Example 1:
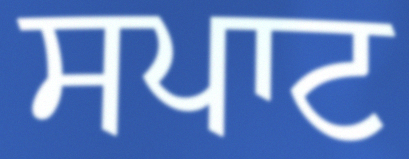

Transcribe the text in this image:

ਸਪਾਟ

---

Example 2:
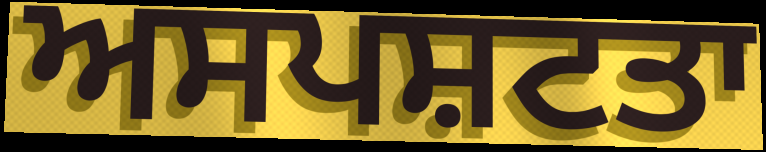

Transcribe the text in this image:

ਅਸਪਸ਼ਟਤਾ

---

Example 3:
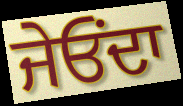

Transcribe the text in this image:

ਜੇਓੰਦਾ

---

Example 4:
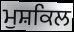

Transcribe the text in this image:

ਮੁਸ਼ਕਿਲ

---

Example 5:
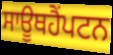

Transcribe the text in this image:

ਸਾਊਥਹੈਂਪਟਨ